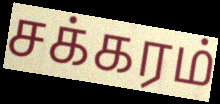
சக்கரம்